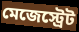
মেজেস্ট্রেট